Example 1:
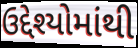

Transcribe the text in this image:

ઉદ્દેશ્યોમાંથી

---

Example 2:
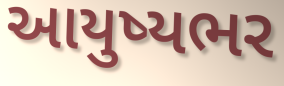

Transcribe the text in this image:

આયુષ્યભર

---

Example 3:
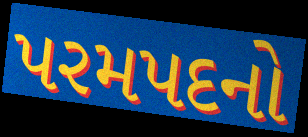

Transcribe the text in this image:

પરમપદનો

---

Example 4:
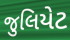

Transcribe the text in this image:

જુલિયેટ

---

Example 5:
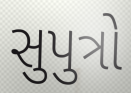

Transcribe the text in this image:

સુપુત્રો